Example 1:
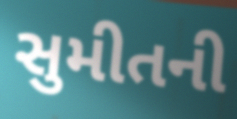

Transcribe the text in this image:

સુમીતની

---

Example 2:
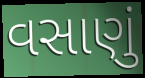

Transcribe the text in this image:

વસાણું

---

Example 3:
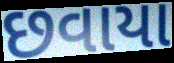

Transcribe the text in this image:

છવાયા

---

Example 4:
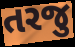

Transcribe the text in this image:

તરજુ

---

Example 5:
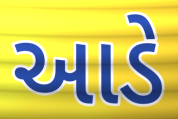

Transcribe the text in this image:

આડે